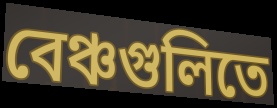
বেঞ্চগুলিতে